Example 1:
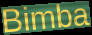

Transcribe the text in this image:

Bimba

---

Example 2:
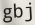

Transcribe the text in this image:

gbj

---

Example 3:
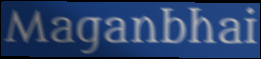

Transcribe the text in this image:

Maganbhai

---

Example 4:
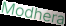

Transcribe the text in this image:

Modhera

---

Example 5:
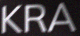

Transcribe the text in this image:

KRA